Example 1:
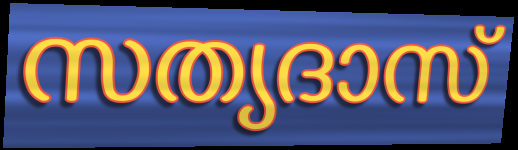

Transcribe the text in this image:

സത്യദാസ്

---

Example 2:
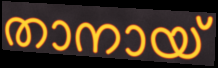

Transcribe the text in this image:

താനായ്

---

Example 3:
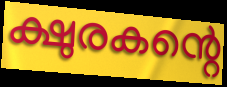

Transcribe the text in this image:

ക്ഷുരകന്റെ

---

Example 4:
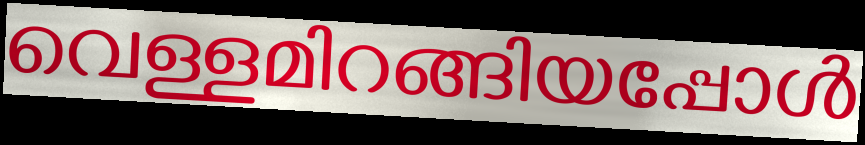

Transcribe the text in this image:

വെള്ളമിറങ്ങിയപ്പോൾ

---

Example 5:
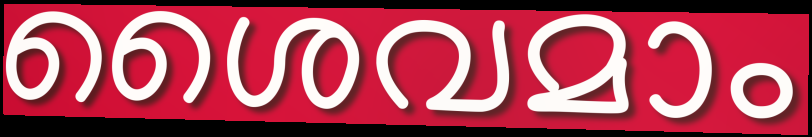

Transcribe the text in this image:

ശൈവമാം